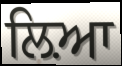
ਲ਼ਿਆ